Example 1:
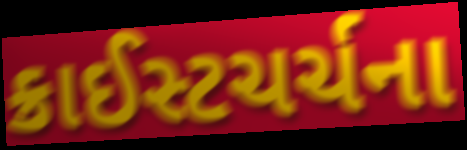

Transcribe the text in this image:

ક્રાઈસ્ટચર્ચના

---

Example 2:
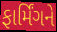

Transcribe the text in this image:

ફાર્મિંગને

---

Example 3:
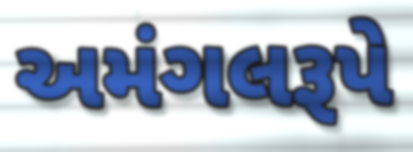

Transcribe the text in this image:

અમંગલરૂપે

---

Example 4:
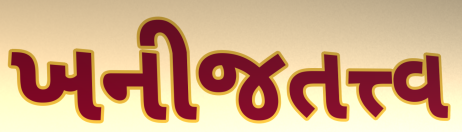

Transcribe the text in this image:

ખનીજતત્ત્વ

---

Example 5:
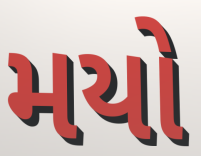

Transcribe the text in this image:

મયો